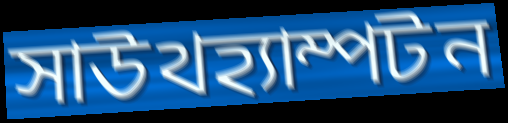
সাউথহ্যাম্পটন